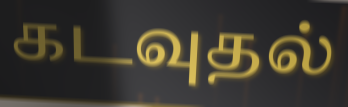
கடவுதல்